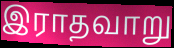
இராதவாறு